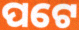
ପଟେ